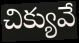
చిక్యువే